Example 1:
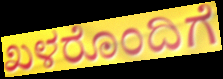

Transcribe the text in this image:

ಖಳರೊಂದಿಗೆ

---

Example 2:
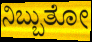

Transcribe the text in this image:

ನಿಬ್ಬುತೋ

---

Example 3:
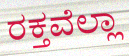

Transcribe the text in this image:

ರಕ್ತವೆಲ್ಲಾ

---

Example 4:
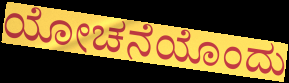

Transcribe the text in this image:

ಯೋಚನೆಯೊಂದು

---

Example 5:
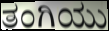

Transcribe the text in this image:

ತಂಗಿಯು